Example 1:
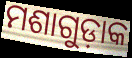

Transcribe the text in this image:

ମଶାଗୁଡ଼ାକ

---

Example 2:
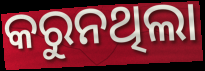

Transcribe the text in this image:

କରୁନଥିଲା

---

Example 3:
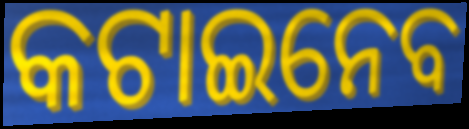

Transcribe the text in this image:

କଟାଇନେବ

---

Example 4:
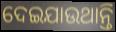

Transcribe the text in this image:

ଦେଇଯାଉଥାନ୍ତି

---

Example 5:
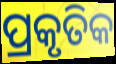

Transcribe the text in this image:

ପ୍ରକୃତିକ